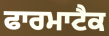
ਫਾਰਮਾਟੈਕ